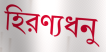
হিরণ্যধনু